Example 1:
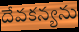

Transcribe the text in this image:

దేవకన్యను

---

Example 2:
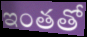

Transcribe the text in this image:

ఇంతతో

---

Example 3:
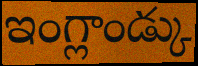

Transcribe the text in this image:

ఇంగ్లాండ్కు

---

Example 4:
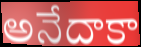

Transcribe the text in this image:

అనేదాకా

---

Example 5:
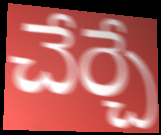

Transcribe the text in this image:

చేర్చే